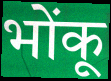
भोंकू